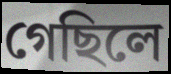
গেছিলে